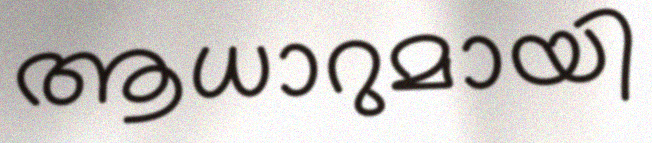
ആധാറുമായി